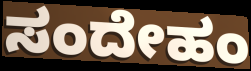
ಸಂದೇಹಂ